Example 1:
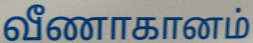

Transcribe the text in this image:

வீணாகானம்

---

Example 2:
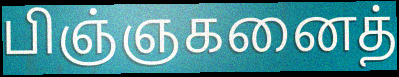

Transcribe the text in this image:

பிஞ்ஞகனைத்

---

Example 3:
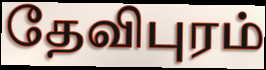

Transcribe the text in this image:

தேவிபுரம்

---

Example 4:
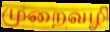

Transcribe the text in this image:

முறைவழி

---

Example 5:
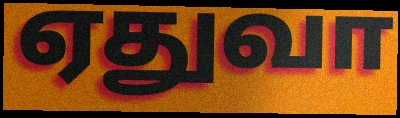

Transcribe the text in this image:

ஏதுவா